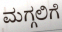
ಮಗ್ಗಲಿಗೆ